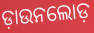
ଡ଼ାଉନଲୋଡ଼